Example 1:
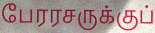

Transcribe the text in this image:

பேரரசருக்குப்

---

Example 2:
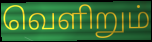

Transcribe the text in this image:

வெளிறும்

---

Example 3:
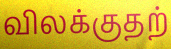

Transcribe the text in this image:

விலக்குதற்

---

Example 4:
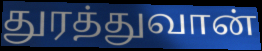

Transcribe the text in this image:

துரத்துவான்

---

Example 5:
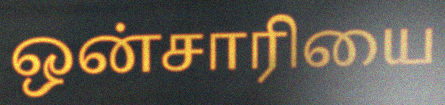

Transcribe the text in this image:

ஒன்சாரியை